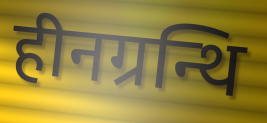
हीनग्रन्थि